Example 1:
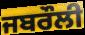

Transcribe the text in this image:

ਜਬਰੌਲੀ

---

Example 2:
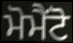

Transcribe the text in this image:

ਮੋਮੈਂਟੋ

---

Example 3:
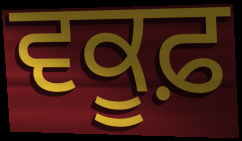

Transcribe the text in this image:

ਵਕੂਫ਼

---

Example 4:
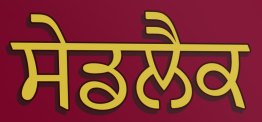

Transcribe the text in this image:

ਸੇਡਲੈਕ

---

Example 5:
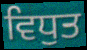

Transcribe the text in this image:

ਵਿਧੁਤ